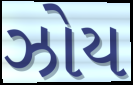
ઝોય